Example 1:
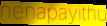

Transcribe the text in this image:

nenapayithu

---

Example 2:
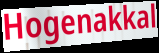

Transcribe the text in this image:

Hogenakkal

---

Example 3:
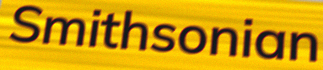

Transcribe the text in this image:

Smithsonian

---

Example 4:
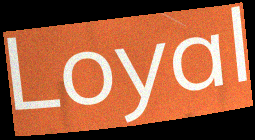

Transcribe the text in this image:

Loyal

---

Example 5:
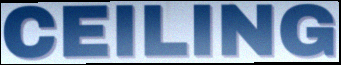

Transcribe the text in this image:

CEILING